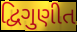
દ્વિગુણીત